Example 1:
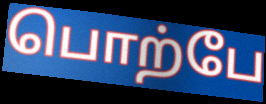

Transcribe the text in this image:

பொற்பே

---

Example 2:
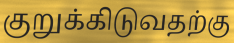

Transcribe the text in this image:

குறுக்கிடுவதற்கு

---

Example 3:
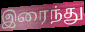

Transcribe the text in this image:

இரைந்து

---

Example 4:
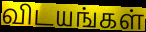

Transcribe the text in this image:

விடயங்கள்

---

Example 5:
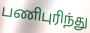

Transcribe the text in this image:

பணிபுரிந்து